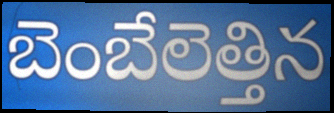
బెంబేలెత్తిన